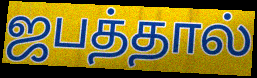
ஜபத்தால்